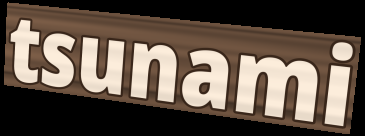
tsunami